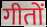
गीतों